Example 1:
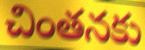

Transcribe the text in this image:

చింతనకు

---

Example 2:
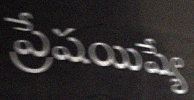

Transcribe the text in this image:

ప్రేషయిష్యే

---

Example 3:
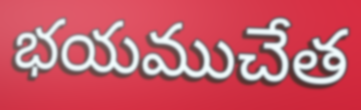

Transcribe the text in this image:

భయముచేత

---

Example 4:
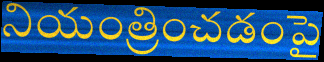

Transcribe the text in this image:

నియంత్రించడంపై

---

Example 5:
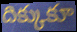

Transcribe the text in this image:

దిక్కుకూ